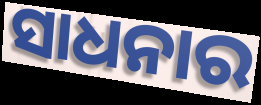
ସାଧନାର